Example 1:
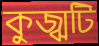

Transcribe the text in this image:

কুজ্ঝটি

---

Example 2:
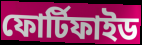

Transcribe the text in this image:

ফোর্টিফাইড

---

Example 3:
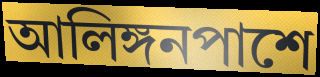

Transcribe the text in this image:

আলিঙ্গনপাশে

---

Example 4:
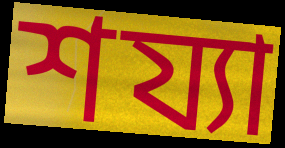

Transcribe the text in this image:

শয্যা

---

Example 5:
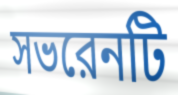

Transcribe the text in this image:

সভরেনটি